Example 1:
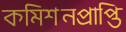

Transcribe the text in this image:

কমিশনপ্রাপ্তি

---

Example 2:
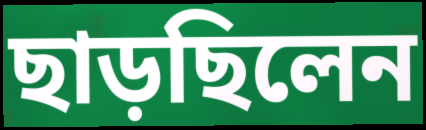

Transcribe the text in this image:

ছাড়ছিলেন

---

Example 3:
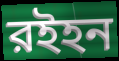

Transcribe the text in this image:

রইহন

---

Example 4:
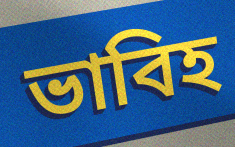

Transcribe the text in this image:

ভাবিহ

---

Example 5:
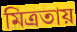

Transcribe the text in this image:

মিত্রতায়